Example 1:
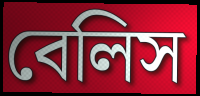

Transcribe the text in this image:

বেলিস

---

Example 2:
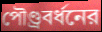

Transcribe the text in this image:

পৌণ্ড্রবর্ধনের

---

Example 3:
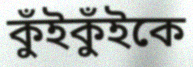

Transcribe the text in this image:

কুঁইকুঁইকে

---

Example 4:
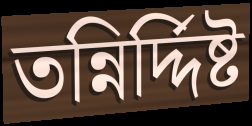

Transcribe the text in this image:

তন্নির্দ্দিষ্ট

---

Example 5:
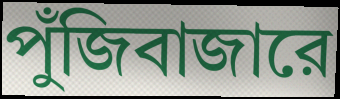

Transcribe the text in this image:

পুঁজিবাজারে